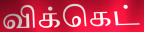
விக்கெட்